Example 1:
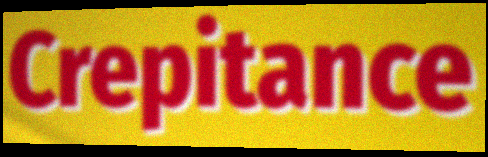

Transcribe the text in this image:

Crepitance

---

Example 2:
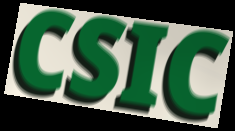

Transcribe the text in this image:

CSIC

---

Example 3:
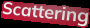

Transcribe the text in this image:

Scattering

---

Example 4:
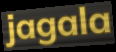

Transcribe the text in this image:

jagala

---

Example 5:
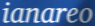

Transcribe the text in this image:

ianareo